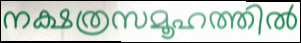
നക്ഷത്രസമൂഹത്തിൽ